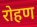
रोहण